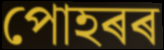
পোহৰৰ